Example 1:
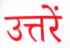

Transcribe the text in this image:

उत्तरें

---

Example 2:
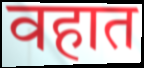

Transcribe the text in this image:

वहात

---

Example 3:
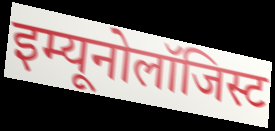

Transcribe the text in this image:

इम्यूनोलॉजिस्ट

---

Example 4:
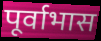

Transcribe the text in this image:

पूर्वाभास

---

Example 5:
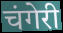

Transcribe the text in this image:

चंगेरी